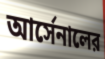
আর্সেনালের